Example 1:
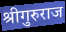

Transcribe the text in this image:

श्रीगुरुराज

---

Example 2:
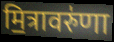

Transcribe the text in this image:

मि॒त्रावरु॑णा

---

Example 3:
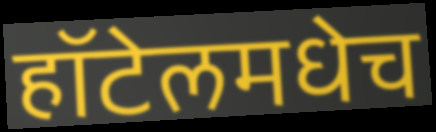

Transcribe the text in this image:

हॉटेलमधेच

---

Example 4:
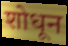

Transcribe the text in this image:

शोधून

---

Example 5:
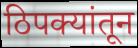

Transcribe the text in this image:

ठिपक्यांतून